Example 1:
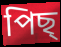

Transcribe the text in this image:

পিছ্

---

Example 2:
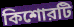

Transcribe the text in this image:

কিশোরটি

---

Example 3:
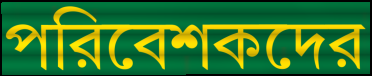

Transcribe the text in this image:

পরিবেশকদের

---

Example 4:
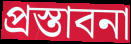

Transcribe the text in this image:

প্রস্তাবনা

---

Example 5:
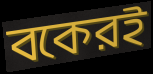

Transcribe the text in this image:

বকেরই